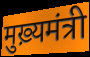
मुख़्यमंत्री